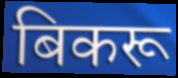
बिकरू